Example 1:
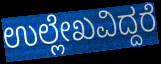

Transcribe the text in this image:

ಉಲ್ಲೇಖವಿದ್ದರೆ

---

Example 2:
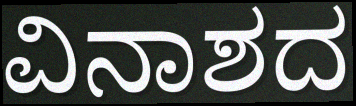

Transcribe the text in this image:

ವಿನಾಶದ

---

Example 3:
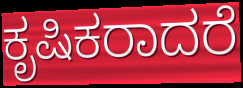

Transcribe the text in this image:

ಕೃಷಿಕರಾದರೆ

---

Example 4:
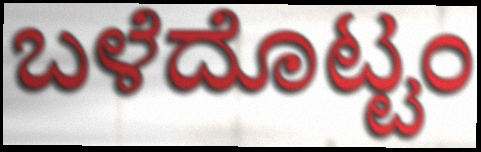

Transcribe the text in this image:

ಬಳೆದೊಟ್ಟಂ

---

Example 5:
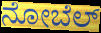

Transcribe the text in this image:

ನೋಬೆಲ್